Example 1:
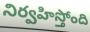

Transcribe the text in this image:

నిర్వహిస్తోంది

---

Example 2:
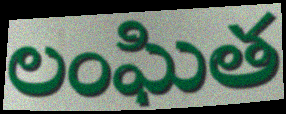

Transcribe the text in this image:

లంఘిత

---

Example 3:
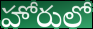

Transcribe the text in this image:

హోరులో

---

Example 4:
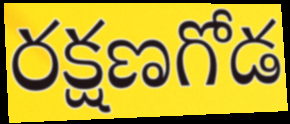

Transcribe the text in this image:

రక్షణగోడ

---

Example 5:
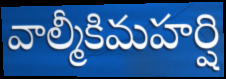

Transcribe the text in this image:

వాల్మీకిమహర్షి